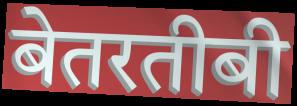
बेतरतीबी